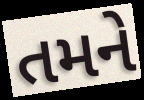
તમને